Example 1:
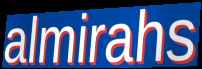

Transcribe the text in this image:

almirahs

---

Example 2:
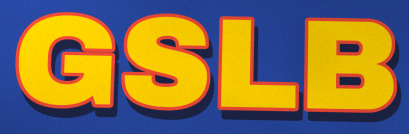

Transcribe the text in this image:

GSLB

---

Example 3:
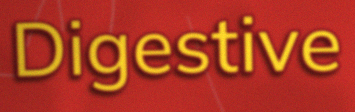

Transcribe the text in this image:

Digestive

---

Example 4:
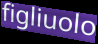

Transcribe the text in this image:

figliuolo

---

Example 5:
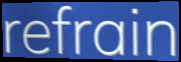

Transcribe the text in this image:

refrain